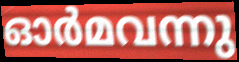
ഓർമവന്നു